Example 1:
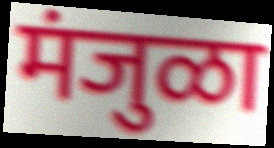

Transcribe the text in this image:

मंजुळा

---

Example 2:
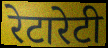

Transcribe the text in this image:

रेटारेटी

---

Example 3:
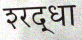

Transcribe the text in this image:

श्रद्धा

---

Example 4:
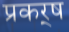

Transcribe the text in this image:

प्रकर्ष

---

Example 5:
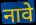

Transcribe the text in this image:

नावे